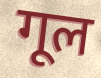
गूल